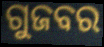
ଗୁଜବର